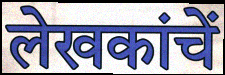
लेखकांचें